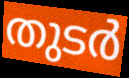
തുടർ